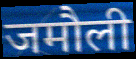
जमौली